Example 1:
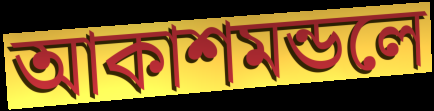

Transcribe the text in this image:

আকাশমন্ডলে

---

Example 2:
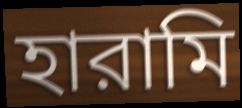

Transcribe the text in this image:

হারামি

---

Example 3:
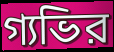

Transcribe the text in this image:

গ্যভির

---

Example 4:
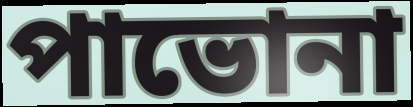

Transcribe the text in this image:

পাভোনা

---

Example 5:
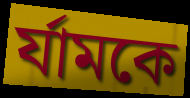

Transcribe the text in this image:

র্যামকে